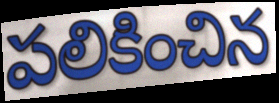
పలికించిన